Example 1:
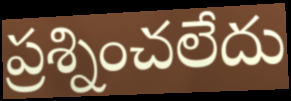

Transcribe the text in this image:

ప్రశ్నించలేదు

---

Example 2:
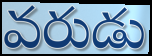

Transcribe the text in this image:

వరుడు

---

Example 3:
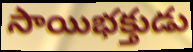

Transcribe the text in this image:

సాయిభక్తుడు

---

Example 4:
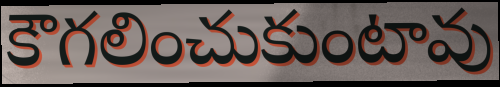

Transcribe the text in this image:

కౌగలించుకుంటావు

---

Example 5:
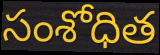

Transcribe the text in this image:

సంశోధిత